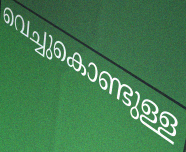
വെച്ചുകൊണ്ടുള്ള